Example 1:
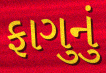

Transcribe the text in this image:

ફાગુનું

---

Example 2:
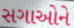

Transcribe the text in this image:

સગાઓને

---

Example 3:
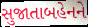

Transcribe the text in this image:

સુજાતાબહેનને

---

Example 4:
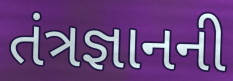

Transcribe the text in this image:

તંત્રજ્ઞાનની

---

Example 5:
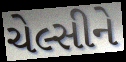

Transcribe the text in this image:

ચેલ્સીને